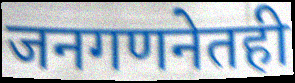
जनगणनेतही